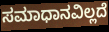
ಸಮಾಧಾನವಿಲ್ಲದೆ